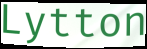
Lytton